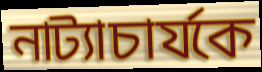
নাট্যাচার্যকে